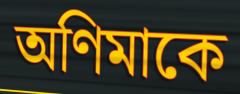
অণিমাকে